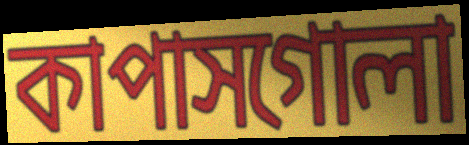
কাপাসগোলা